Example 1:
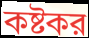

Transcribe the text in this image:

কষ্টকর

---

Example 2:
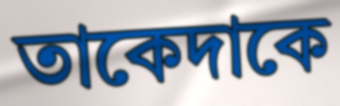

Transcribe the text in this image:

তাকেদাকে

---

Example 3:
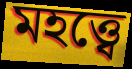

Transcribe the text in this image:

মহত্ত্বে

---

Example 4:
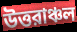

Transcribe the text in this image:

উত্তরাঞ্চল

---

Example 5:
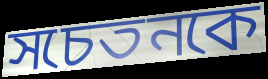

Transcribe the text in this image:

সচেতনকে